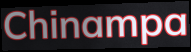
Chinampa